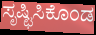
ಸೃಷ್ಟಿಸಿಕೊಂಡ